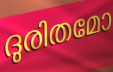
ദുരിതമോ